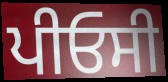
ਪੀਓਸੀ